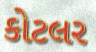
કોટલર